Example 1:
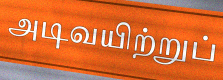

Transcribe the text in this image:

அடிவயிற்றுப்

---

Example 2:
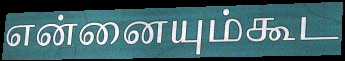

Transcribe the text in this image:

என்னையும்கூட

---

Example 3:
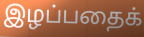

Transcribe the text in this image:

இழப்பதைக்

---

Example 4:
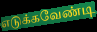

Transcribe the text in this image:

எடுக்கவேண்டி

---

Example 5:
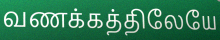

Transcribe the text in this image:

வணக்கத்திலேயே